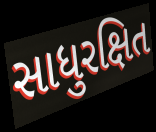
સાધુરક્ષિત